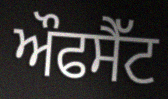
ਔਫਸੈੱਟ